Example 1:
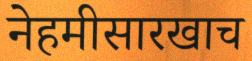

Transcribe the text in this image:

नेहमीसारखाच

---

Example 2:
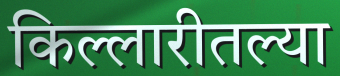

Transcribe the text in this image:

किल्लारीतल्या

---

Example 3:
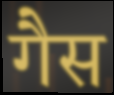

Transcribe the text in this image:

गैस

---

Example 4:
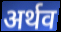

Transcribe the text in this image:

अर्थव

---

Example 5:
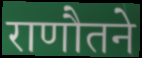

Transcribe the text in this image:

राणौतने